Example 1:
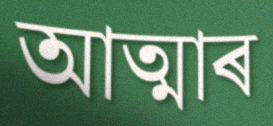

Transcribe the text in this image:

আত্মাৰ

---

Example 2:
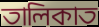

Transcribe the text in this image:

তালিকাত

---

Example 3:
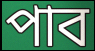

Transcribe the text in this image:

পাব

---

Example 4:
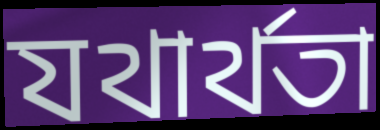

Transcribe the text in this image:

যথাৰ্থতা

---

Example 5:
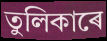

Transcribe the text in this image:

তুলিকাৰে